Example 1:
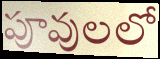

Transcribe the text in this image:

పూవులలో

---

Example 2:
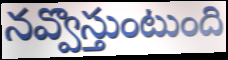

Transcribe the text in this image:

నవ్వొస్తుంటుంది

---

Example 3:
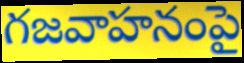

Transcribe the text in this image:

గజవాహనంపై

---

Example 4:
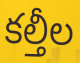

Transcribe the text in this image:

కల్తీల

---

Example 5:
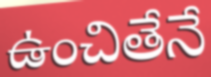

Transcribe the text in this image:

ఉంచితేనే